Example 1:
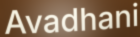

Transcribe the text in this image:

Avadhani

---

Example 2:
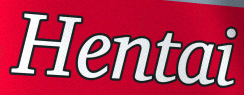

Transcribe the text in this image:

Hentai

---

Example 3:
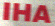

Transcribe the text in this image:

IHA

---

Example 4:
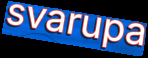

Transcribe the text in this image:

svarupa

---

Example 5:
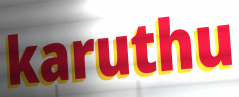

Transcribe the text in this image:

karuthu